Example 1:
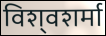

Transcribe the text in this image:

विश्वशर्मा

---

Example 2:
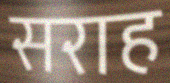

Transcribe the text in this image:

सराह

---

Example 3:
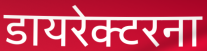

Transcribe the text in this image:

डायरेक्टरना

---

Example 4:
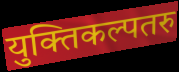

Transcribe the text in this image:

युक्तिकल्पतरु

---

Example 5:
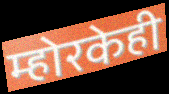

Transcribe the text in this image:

म्होरकेही